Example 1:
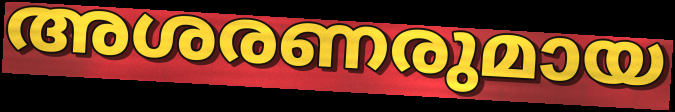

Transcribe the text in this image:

അശരണരുമായ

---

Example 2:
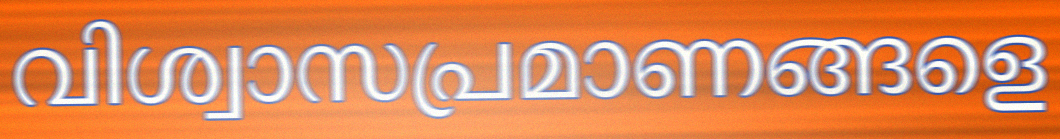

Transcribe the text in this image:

വിശ്വാസപ്രമാണങ്ങളെ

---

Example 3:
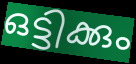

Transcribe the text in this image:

ഒട്ടിക്കും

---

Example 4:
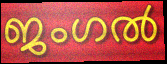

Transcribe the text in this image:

ജംഗൽ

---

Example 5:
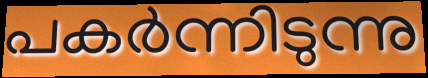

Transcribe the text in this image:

പകർന്നിടുന്നു